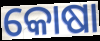
କୋଷା